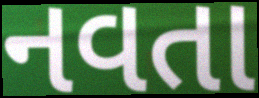
નવતા